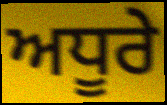
ਅਧੂਰੇ